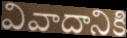
వివాదానికి